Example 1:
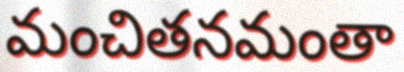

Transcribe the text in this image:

మంచితనమంతా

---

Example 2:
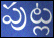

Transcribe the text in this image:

పుట్ల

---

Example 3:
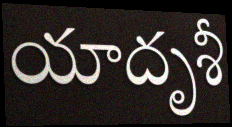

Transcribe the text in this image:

యాదృశీ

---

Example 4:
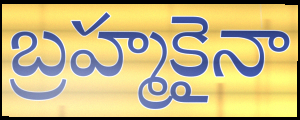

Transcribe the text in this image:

బ్రహ్మకైనా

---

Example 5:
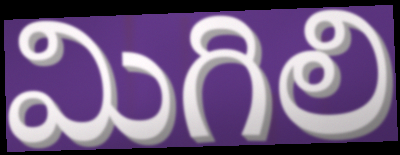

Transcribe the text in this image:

మిగిలి